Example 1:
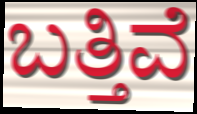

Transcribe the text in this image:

ಬತ್ತಿವೆ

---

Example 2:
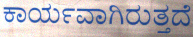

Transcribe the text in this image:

ಕಾರ್ಯವಾಗಿರುತ್ತದೆ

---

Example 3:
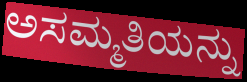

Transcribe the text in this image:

ಅಸಮ್ಮತಿಯನ್ನು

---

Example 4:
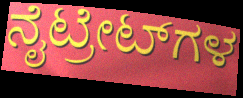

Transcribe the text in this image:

ನೈಟ್ರೇಟ್‌ಗಳ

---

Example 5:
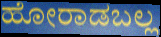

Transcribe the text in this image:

ಹೋರಾಡಬಲ್ಲ